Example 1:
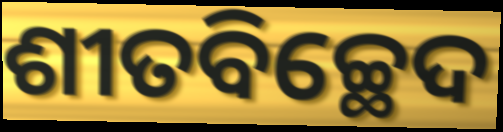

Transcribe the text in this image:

ଶୀତବିଚ୍ଛେଦ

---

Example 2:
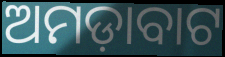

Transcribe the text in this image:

ଅମଡ଼ାବାଟ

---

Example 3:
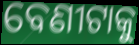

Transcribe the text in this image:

ବେଣୀଟାକୁ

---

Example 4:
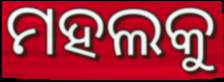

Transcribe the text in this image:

ମହଲକୁ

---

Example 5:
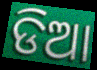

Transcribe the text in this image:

ଡିଆ